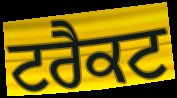
ਟਰੈਕਟ